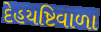
દેહયષ્ટિવાળા